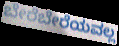
ಬೇರೆಬೇರೆಯವಲ್ಲ